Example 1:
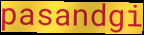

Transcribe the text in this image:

pasandgi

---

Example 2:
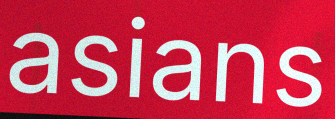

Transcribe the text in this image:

asians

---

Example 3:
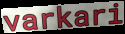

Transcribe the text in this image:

varkari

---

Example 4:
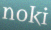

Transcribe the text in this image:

noki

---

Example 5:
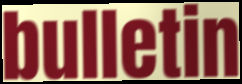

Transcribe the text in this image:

bulletin